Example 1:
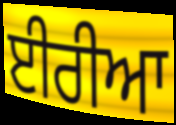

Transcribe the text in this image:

ਈਰੀਆ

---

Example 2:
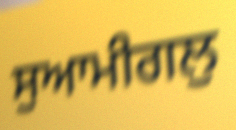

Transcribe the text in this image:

ਸੁਆਮੀਗਲੁ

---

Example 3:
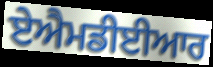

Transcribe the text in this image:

ਏਐਮਡੀਈਆਰ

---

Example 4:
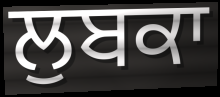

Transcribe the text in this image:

ਲੁਬਕਾ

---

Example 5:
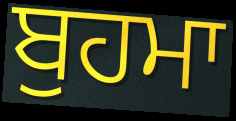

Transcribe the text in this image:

ਬੁਹਮਾ